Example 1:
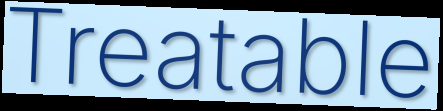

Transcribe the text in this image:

Treatable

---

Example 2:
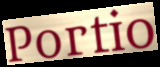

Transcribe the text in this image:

Portio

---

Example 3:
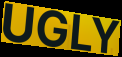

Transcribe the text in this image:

UGLY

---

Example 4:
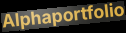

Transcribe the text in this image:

Alphaportfolio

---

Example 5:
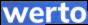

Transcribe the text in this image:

werto